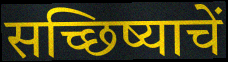
सच्छिष्याचें